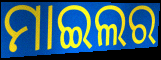
ମାଇଲର